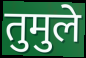
तुमुले